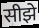
सीझे